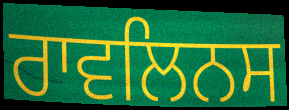
ਰਾਵਲਿਨਸ